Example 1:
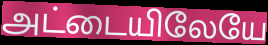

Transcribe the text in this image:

அட்டையிலேயே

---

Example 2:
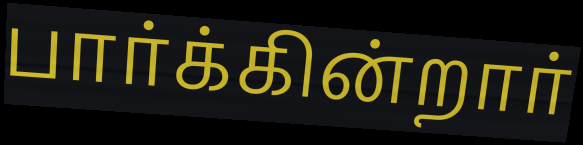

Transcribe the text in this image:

பார்க்கின்றார்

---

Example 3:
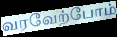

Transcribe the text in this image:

வரவேற்போம்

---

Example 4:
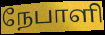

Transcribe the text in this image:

நேபாளி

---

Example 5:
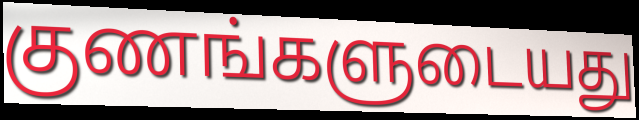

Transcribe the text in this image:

குணங்களுடையது